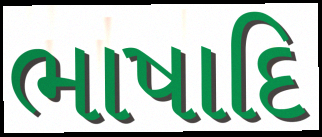
ભાષાદિ